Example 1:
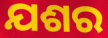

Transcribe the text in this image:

ଯଶର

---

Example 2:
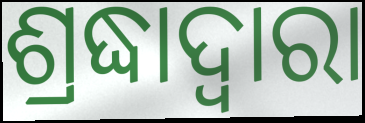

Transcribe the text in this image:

ଶ୍ରଦ୍ଧାଦ୍ୱାରା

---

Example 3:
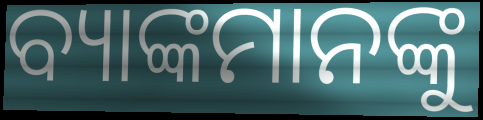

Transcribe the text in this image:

ବ୍ୟାଙ୍କମାନଙ୍କୁ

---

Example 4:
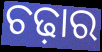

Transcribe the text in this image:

ଚଢ଼ାର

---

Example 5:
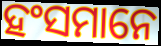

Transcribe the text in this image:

ହଂସମାନେ